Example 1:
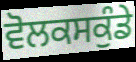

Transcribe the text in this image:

ਵੋਲਕਸਕੁੰਡੇ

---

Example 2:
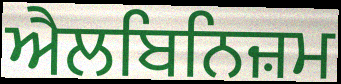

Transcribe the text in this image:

ਐਲਬਿਨਿਜ਼ਮ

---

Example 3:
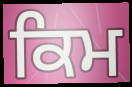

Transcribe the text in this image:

ਕਿਮ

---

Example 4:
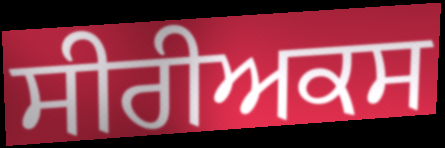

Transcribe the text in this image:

ਸੀਰੀਅਕਸ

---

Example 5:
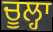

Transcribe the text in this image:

ਚੂਲ੍ਹਾ